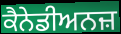
ਕੈਨੇਡੀਅਨਜ਼